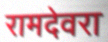
रामदेवरा